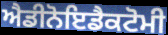
ਐਡੀਨੋਇਡੈਕਟੋਮੀ